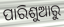
ପାରିଶୁଆରୁ